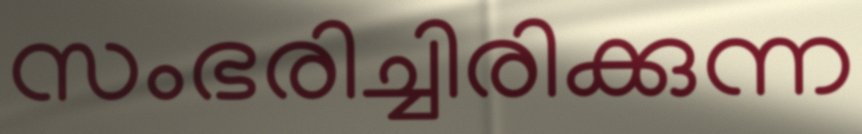
സംഭരിച്ചിരിക്കുന്ന